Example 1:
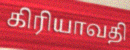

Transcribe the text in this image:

கிரியாவதி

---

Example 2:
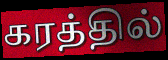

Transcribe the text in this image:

கரத்தில்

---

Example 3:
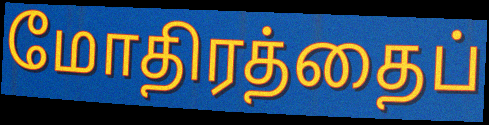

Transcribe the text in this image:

மோதிரத்தைப்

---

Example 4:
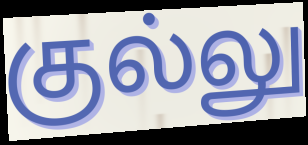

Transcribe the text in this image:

குல்லு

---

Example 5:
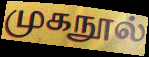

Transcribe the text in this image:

முகநூல்